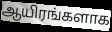
ஆயிரங்களாக